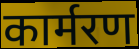
कार्मरण